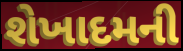
શેખાદમની